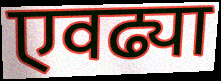
एवढ्या